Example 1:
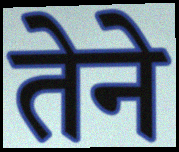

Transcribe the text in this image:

तेने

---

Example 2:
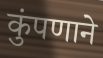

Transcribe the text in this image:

कुंपणाने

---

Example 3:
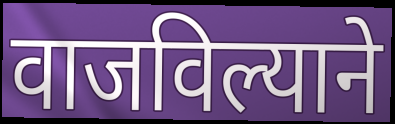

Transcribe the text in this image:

वाजविल्याने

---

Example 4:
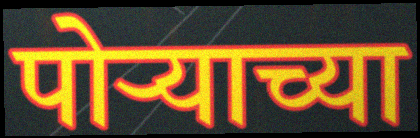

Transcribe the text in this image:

पोऱ्याच्या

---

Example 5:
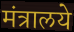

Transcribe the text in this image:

मंत्रालये